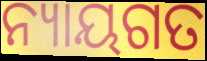
ନ୍ୟାୟଗତ